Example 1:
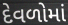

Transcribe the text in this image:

દેવળોમાં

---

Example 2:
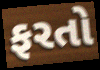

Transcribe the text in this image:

ફરતો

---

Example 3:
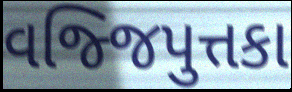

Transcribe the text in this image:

વજ્જિપુત્તકા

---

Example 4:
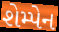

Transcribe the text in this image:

શેમ્પેન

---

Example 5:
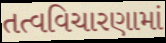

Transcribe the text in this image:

તત્વવિચારણામાં